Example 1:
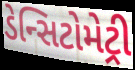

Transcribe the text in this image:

ડેન્સિટોમેટ્રી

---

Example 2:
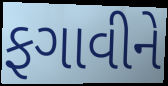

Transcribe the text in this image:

ફગાવીને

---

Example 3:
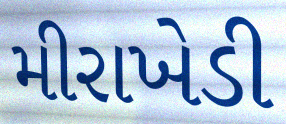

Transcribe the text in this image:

મીરાખેડી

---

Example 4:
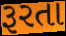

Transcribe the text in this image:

રૂરતા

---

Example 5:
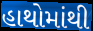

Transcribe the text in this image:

હાથોમાંથી